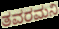
ತವರಮನಿ